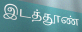
இடத்தூண்